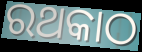
ରଥକାଠ